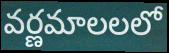
వర్ణమాలలలో